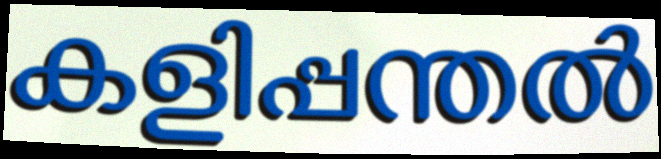
കളിപ്പന്തൽ